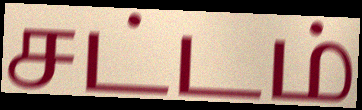
சட்டம்